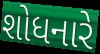
શોધનારે